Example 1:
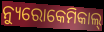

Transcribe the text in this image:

ନ୍ୟୁରୋକେମିକାଲ୍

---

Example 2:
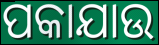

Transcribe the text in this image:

ପକାଯାଉ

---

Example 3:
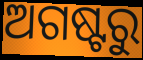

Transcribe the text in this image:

ଅଗଷ୍ଟରୁ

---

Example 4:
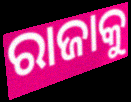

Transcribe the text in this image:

ରାଜାକୁ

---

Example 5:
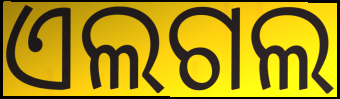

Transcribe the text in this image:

ଏଲଗଲ